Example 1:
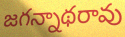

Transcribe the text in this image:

జగన్నాథరావు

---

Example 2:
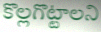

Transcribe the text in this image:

కొల్లగొట్టాలని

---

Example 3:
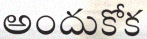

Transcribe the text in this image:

అందుకోక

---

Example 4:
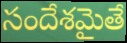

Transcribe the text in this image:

సందేశమైతే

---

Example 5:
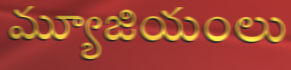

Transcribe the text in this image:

మ్యూజియంలు